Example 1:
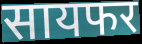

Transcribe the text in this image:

सायफर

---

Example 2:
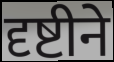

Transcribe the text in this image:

दृष्टीने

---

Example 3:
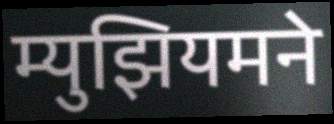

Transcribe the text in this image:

म्युझियमने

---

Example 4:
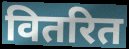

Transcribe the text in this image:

वितरित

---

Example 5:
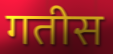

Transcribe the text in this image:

गतीस